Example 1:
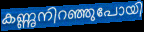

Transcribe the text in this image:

കണ്ണുനിറഞ്ഞുപോയി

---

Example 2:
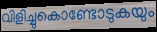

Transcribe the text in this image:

വിളിച്ചുകൊണ്ടോടുകയും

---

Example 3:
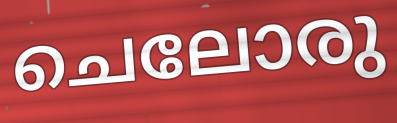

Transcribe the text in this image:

ചെലോരു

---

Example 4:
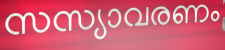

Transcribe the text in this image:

സസ്യാവരണം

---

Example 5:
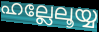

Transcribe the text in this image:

ഹല്ലേലൂയ്യ